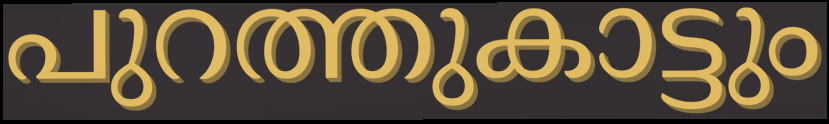
പുറത്തുകാട്ടും